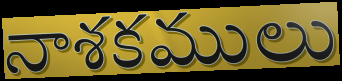
నాశకములు